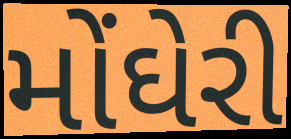
મોંઘેરી